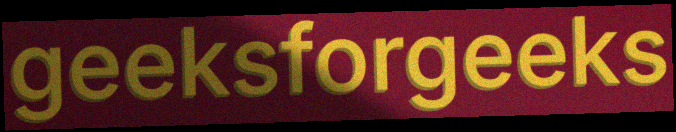
geeksforgeeks